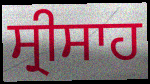
ਸ੍ਰੀਸਾਹ